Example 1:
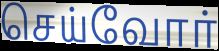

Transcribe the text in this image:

செய்வோர்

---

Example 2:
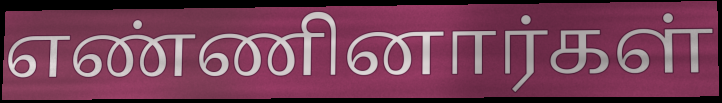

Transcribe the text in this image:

எண்ணினார்கள்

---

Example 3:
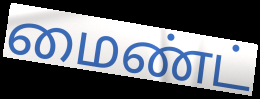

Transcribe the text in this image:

மைண்ட்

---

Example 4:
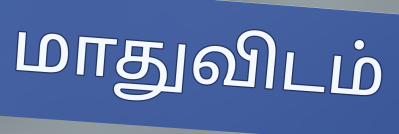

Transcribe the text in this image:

மாதுவிடம்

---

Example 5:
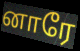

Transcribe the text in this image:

னாரே